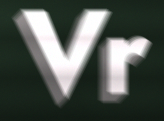
Vr